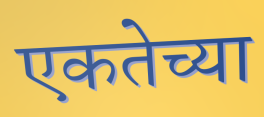
एकतेच्या